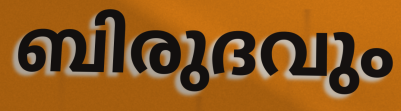
ബിരുദവും